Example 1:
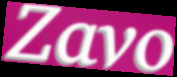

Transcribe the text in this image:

Zavo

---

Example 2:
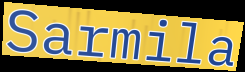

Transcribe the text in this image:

Sarmila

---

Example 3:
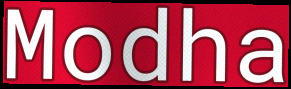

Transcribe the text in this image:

Modha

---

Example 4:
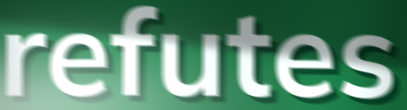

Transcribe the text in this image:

refutes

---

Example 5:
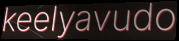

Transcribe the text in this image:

keelyavudo